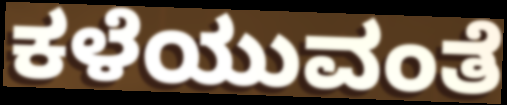
ಕಳೆಯುವಂತೆ